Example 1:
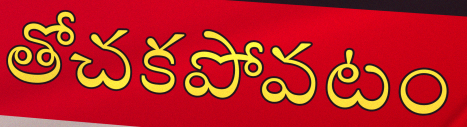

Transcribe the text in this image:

తోచకపోవటం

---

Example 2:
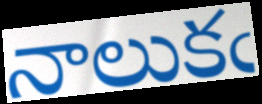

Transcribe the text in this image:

నాలుకఁ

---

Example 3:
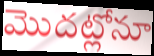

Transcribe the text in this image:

మొదట్లోనూ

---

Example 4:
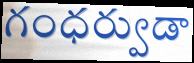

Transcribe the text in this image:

గంధర్వుడా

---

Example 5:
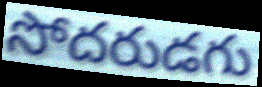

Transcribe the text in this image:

సోదరుడగు